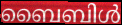
ബൈബിൾ